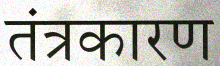
तंत्रकारण